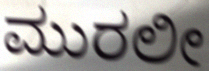
ಮುರಲೀ